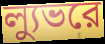
ল্যুভরে